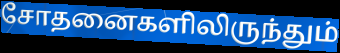
சோதனைகளிலிருந்தும்